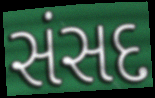
સંસદ